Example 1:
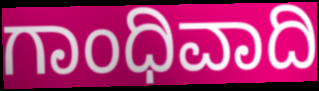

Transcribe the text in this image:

ಗಾಂಧಿವಾದಿ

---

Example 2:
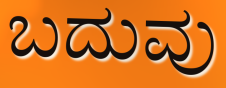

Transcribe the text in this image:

ಬದುವು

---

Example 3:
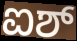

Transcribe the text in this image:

ಐಶ್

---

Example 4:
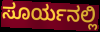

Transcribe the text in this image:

ಸೂರ್ಯನಲ್ಲಿ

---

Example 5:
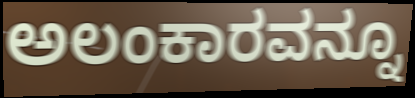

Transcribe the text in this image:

ಅಲಂಕಾರವನ್ನೂ